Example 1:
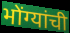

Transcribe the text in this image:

भोंग्यांची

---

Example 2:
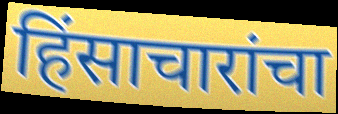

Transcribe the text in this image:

हिंसाचारांचा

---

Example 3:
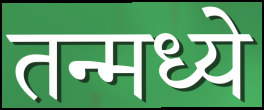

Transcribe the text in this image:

तन्मध्ये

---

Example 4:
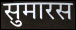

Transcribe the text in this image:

सुमारस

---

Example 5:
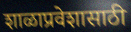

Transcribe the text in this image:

शाळाप्रवेशासाठी